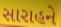
સારાહને